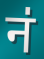
न॑